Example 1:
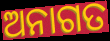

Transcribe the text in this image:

ଅନାଗତ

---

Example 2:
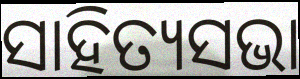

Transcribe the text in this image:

ସାହିତ୍ୟସଭା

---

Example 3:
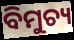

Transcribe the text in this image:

ବିମୁଚ୍ୟ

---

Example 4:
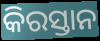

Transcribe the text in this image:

କିରସ୍ତାନ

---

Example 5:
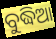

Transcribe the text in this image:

ବୁଦ୍ଧିଆ